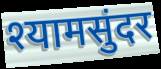
श्यामसुंदर